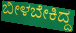
ಬೀಳಬೇಕಿದ್ದ